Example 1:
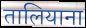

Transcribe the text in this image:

तालियाना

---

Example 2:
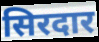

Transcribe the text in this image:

सिरदार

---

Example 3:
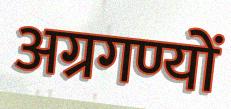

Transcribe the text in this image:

अग्रगण्यों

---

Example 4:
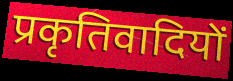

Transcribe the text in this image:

प्रकृतिवादियों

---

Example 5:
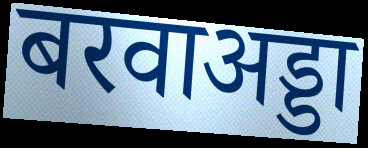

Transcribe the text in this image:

बरवाअड्डा